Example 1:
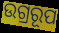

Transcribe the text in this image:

ଉଗ୍ରରୂପ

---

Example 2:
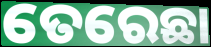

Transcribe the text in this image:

ତେରେଛା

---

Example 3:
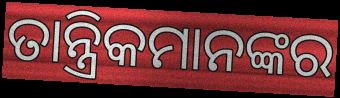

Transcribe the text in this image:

ତାନ୍ତ୍ରିକମାନଙ୍କର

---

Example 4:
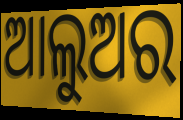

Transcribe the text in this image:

ଆଲୁଅର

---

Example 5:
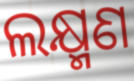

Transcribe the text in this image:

ଲକ୍ଷ୍ମଣ